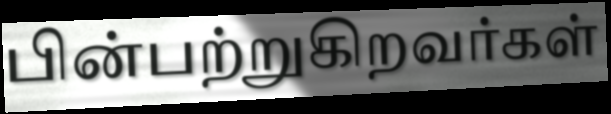
பின்பற்றுகிறவர்கள்